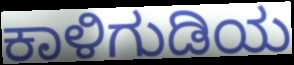
ಕಾಳಿಗುಡಿಯ